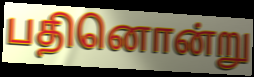
பதினொன்று